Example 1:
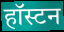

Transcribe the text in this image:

हॉस्टन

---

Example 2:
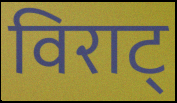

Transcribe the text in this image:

विराट्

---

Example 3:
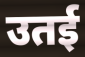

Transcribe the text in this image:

उतई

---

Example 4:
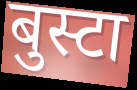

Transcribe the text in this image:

बुस्टा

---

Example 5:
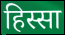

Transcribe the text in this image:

हिस्सा